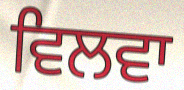
ਵਿਲਵਾ